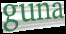
guna